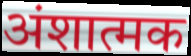
अंशात्मक